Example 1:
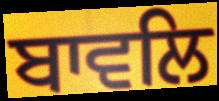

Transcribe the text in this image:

ਬਾਵਲਿ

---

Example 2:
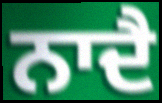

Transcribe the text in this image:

ਨਾਦੈ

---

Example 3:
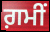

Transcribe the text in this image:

ਗ਼ਮੀਂ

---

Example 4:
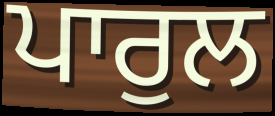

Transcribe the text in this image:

ਪਾਰੁਲ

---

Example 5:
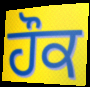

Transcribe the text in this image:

ਹੌਕ